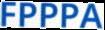
FPPPA